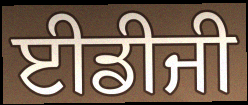
ਈਡੀਜੀ